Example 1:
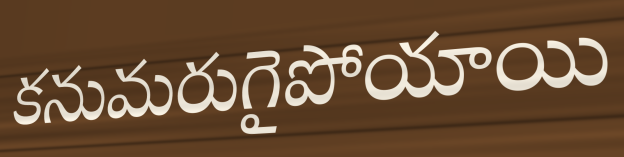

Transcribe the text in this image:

కనుమరుగైపోయాయి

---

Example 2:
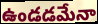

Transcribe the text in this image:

ఉండడమేనా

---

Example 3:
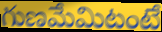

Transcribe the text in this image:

గుణమేమిటంటే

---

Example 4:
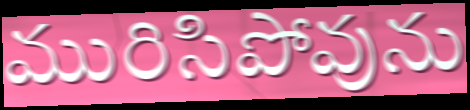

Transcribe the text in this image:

మురిసిపోవును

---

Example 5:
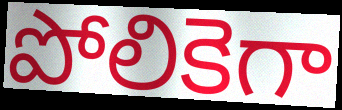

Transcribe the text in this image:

పోలికెగా